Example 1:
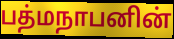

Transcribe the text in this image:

பத்மநாபனின்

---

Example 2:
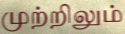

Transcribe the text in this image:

முற்றிலும்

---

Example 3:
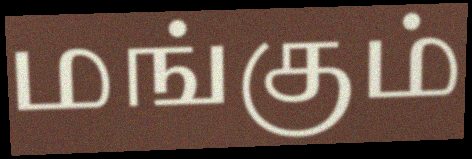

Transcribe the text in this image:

மங்கும்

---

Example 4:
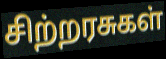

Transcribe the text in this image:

சிற்றரசுகள்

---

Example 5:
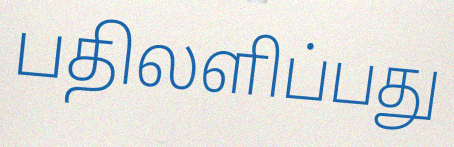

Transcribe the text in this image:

பதிலளிப்பது